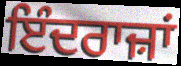
ਇੰਦਰਾਜ਼ਾਂ